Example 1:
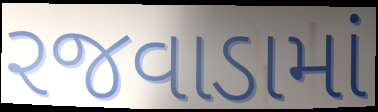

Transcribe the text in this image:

રજવાડામાં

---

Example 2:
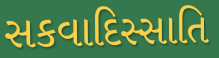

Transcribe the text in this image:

સકવાદિસ્સાતિ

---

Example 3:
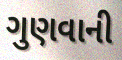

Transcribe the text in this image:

ગુણવાની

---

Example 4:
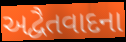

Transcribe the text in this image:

અદ્વૈતવાદના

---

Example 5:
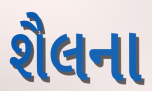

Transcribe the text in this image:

શૈલના